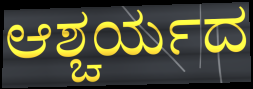
ಆಶ್ಚರ್ಯದ